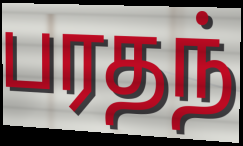
பரதந்